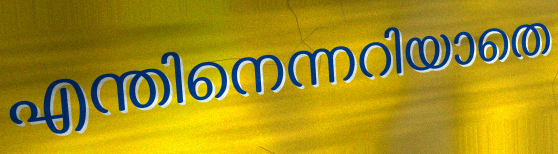
എന്തിനെന്നറിയാതെ